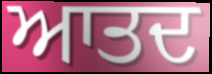
ਆਤਦ